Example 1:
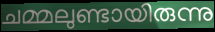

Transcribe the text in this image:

ചമ്മലുണ്ടായിരുന്നു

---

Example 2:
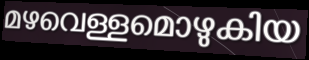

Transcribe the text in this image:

മഴവെള്ളമൊഴുകിയ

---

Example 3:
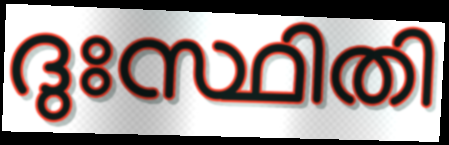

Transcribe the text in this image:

ദുഃസ്ഥിതി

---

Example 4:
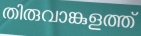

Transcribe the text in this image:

തിരുവാങ്കുളത്ത്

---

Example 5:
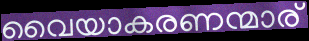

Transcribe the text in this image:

വൈയാകരണന്മാര്